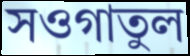
সওগাতুল